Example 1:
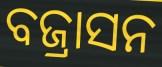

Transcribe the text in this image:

ବଜ୍ରାସନ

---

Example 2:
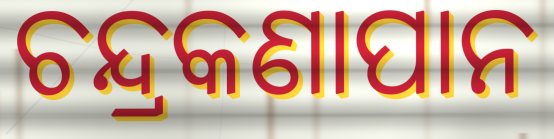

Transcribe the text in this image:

ଚନ୍ଦ୍ରକଣାପାନ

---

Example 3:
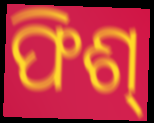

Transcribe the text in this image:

ଫିଶ୍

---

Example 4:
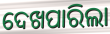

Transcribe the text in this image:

ଦେଖପାରିଲା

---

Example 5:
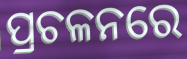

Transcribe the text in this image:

ପ୍ରଚଳନରେ